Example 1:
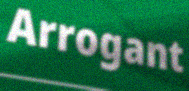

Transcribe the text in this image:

Arrogant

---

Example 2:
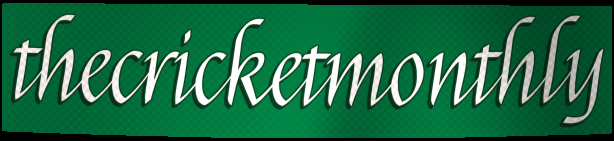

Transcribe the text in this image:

thecricketmonthly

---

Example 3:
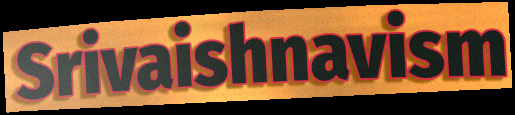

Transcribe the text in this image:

Srivaishnavism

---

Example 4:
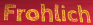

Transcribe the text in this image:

Frohlich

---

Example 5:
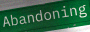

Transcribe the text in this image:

Abandoning